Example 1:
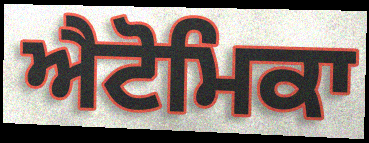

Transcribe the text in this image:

ਐਟੋਮਿਕਾ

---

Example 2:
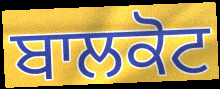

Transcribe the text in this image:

ਬਾਲਕੋਟ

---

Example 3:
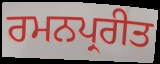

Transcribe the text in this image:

ਰਮਨਪ੍ਰਰੀਤ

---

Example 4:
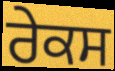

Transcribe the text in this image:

ਰੇਕਸ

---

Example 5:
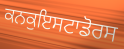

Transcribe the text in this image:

ਕਨਕੁਇਸਟਾਡੋਰਸ